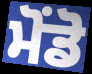
ਮੋਂਡੋ